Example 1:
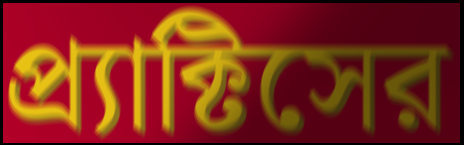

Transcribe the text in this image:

প্র্যাক্টিসের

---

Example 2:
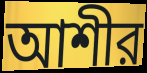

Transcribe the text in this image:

আশীর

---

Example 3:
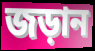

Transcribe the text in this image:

জড়ান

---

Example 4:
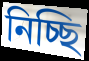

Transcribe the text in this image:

নিচ্ছি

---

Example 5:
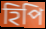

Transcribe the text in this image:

হিপি